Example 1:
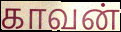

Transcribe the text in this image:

காவன்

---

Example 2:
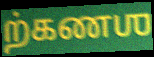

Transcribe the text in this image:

ற்கணஶ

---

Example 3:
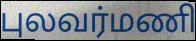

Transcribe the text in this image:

புலவர்மணி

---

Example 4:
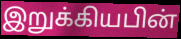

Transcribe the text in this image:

இறுக்கியபின்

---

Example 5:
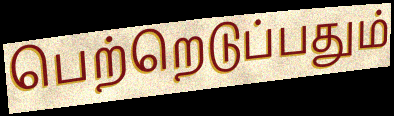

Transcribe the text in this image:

பெற்றெடுப்பதும்